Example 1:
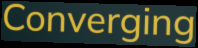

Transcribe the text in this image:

Converging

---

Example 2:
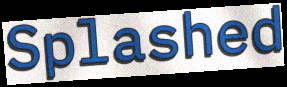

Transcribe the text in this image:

Splashed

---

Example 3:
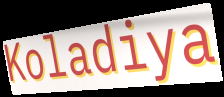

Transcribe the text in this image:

Koladiya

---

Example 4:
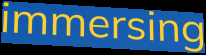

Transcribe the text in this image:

immersing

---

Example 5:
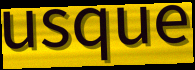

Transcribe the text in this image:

usque